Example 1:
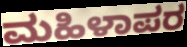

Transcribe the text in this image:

ಮಹಿಳಾಪರ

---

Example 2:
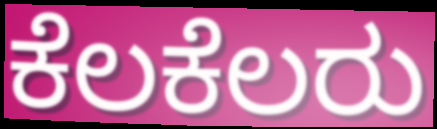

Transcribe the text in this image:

ಕೆಲಕೆಲರು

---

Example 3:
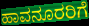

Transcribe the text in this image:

ಹಾವನೂರರಿಗೆ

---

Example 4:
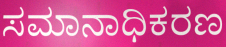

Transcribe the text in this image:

ಸಮಾನಾಧಿಕರಣ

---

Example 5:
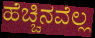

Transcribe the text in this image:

ಹೆಚ್ಚಿನವೆಲ್ಲ